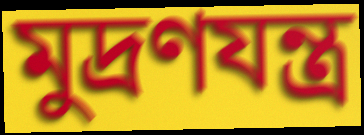
মুদ্ৰণযন্ত্ৰ